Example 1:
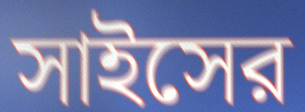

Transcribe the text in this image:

সাইসের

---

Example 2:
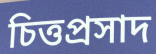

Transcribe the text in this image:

চিত্তপ্রসাদ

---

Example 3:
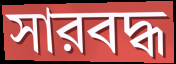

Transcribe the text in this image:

সারবদ্ধ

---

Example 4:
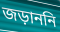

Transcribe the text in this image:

জড়াননি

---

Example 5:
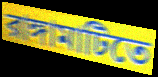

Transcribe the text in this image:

রাঙ্গামাটিতে